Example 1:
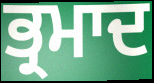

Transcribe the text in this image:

ਭ੍ਰਮਾਦ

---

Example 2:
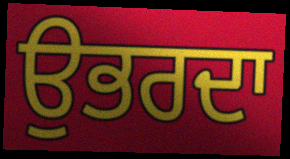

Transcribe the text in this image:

ਉਭਰਦਾ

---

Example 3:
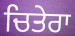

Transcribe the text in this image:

ਚਿਤੇਰਾ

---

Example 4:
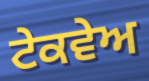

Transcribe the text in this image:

ਟੇਕਵੇਅ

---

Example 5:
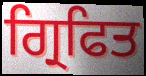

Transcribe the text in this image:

ਗ੍ਰਿਫਿਤ